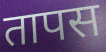
तापस